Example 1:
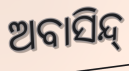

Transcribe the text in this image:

ଅବାସିନ୍ଦ୍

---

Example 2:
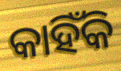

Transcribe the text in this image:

କାହିଁକି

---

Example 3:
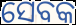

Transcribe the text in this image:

ସେବକ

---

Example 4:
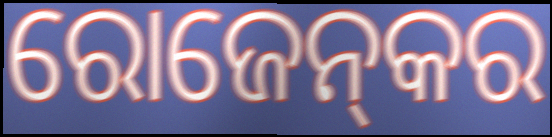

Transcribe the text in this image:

ରୋଜେନ୍‌କର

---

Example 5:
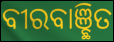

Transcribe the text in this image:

ବୀରବାଞ୍ଛିତ